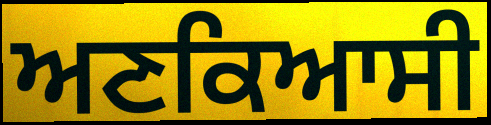
ਅਣਕਿਆਸੀ